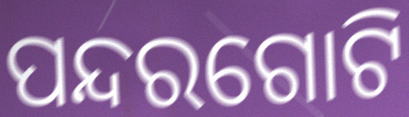
ପନ୍ଦରଗୋଟି